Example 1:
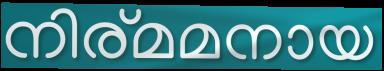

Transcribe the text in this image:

നിര്മമനായ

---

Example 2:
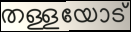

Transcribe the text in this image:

തള്ളയോട്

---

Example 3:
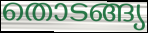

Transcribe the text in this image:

തൊടങ്ങ്യ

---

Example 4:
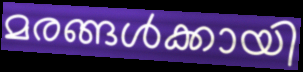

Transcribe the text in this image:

മരങ്ങൾക്കായി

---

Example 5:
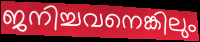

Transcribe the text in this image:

ജനിച്ചവനെങ്കിലും